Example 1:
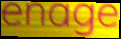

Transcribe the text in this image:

enage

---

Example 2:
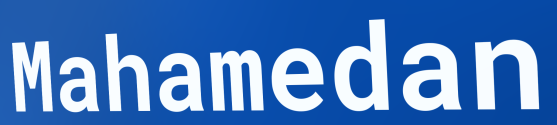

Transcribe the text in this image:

Mahamedan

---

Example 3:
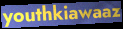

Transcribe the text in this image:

youthkiawaaz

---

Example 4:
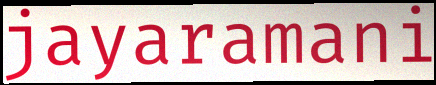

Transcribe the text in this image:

jayaramani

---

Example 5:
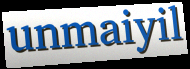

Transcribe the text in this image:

unmaiyil